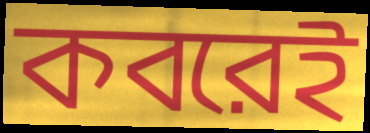
কবরেই